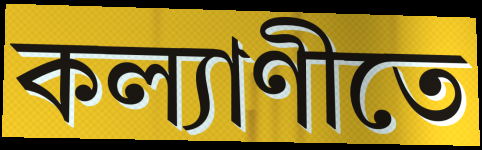
কল্যাণীতে